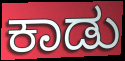
ಕಾಡು